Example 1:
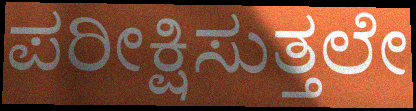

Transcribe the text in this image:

ಪರೀಕ್ಷಿಸುತ್ತಲೇ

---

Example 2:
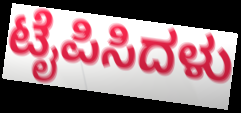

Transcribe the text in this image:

ಟೈಪಿಸಿದಳು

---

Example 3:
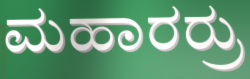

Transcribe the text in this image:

ಮಹಾರರ್ರು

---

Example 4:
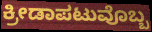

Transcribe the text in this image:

ಕ್ರೀಡಾಪಟುವೊಬ್ಬ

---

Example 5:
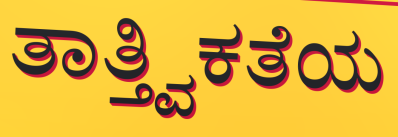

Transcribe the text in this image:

ತಾತ್ತ್ವಿಕತೆಯ